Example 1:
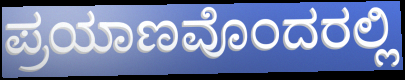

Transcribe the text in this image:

ಪ್ರಯಾಣವೊಂದರಲ್ಲಿ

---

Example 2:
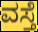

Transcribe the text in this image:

ವಸ್ತೆ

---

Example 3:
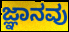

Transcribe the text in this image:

ಜ್ಞಾನವು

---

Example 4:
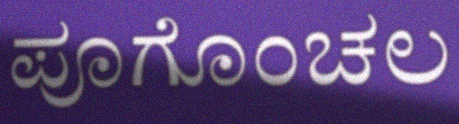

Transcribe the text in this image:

ಪೂಗೊಂಚಲ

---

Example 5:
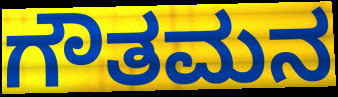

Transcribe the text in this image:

ಗೌತಮನ